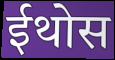
ईथोस